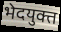
भेदयुक्त